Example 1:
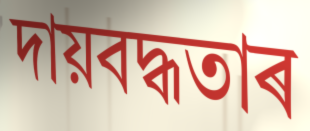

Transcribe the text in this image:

দায়বদ্ধতাৰ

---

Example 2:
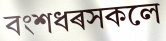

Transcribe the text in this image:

বংশধৰসকলে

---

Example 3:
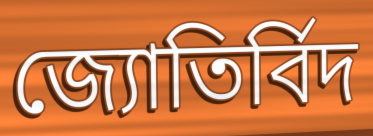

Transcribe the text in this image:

জ্যোতিৰ্বিদ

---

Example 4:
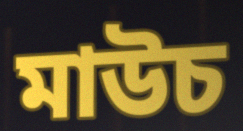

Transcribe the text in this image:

মাউচ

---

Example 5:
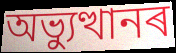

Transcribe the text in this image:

অভ্যুত্থানৰ